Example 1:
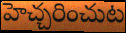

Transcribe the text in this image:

హెచ్చరించుట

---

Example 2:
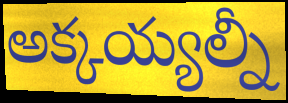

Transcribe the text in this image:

అక్కయ్యల్నీ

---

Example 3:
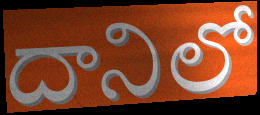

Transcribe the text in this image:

దానిలో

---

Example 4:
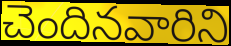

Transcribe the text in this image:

చెందినవారిని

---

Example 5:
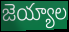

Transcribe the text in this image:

జెయ్యాల